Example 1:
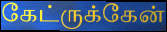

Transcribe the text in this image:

கேட்ருக்கேன்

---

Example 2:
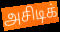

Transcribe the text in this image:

அசிடிக்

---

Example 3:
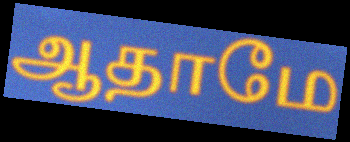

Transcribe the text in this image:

ஆதாமே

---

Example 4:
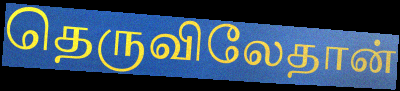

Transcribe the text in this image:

தெருவிலேதான்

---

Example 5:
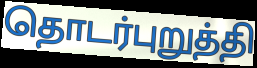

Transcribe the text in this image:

தொடர்புறுத்தி